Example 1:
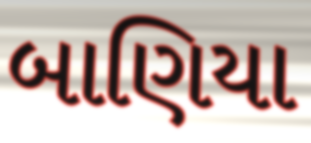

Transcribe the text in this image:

બાણિયા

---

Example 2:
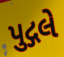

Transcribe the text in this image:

પુદ્ગલે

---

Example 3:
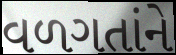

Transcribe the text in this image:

વળગતાંને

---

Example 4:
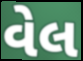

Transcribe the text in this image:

વેલ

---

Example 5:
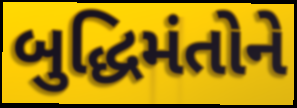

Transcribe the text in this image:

બુદ્ધિમંતોને